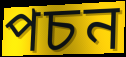
পচন